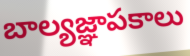
బాల్యజ్ఞాపకాలు